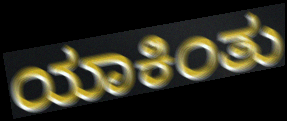
ಯಾಕಿಂತು